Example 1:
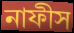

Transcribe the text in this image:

নাফীস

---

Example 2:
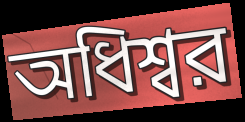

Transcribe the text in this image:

অধিশ্বর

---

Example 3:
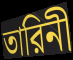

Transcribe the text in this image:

তারিনী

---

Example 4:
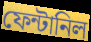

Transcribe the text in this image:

ফেন্টানিল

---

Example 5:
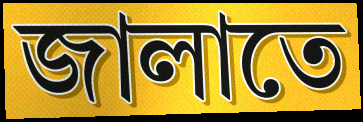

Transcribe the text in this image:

জালাতে